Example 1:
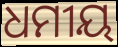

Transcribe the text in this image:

ଧମୀୟ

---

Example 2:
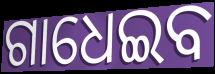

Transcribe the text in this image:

ଗାଧେଇବ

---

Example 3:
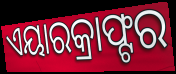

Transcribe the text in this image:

ଏୟାରକ୍ରାଫ୍ଟର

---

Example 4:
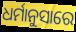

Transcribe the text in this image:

ଧର୍ମାନୁସାରେ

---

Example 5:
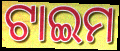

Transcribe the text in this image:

ଟାଇମ